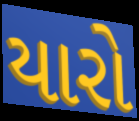
યારો